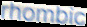
rhombic